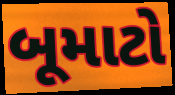
બૂમાટો